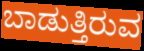
ಬಾಡುತ್ತಿರುವ